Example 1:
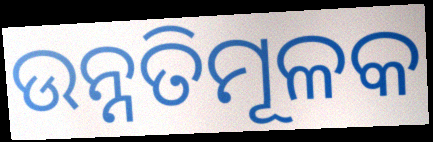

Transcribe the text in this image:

ଉନ୍ନତିମୂଳକ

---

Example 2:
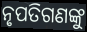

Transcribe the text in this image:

ନୃପତିଗଣଙ୍କୁ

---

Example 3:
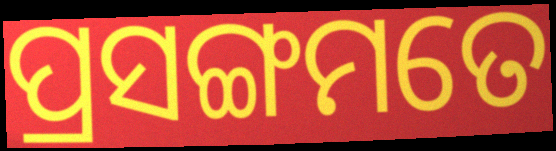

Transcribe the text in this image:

ପ୍ରସଙ୍ଗମତେ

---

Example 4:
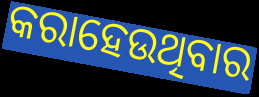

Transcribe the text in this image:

କରାହେଉଥିବାର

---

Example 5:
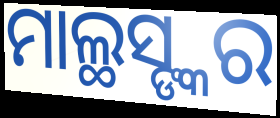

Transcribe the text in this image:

ମାଲ୍ଥସ୍ଙ୍କର